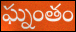
ఘ్నంతం